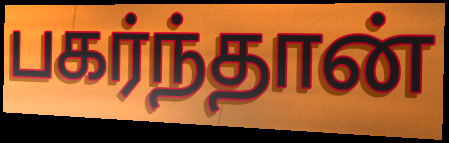
பகர்ந்தான்